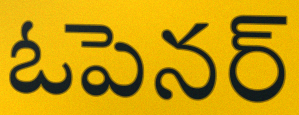
ఓపెనర్